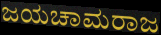
ಜಯಚಾಮರಾಜ